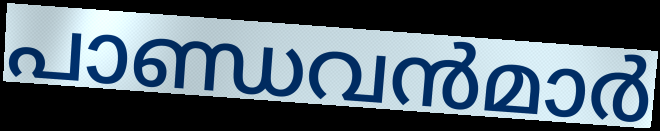
പാണ്ഡവൻമാർ